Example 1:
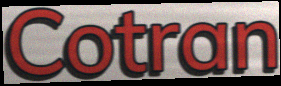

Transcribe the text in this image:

Cotran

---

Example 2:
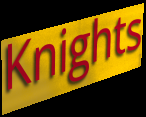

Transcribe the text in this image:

Knights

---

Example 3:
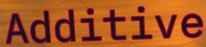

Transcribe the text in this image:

Additive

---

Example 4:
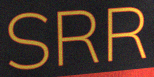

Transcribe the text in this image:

SRR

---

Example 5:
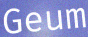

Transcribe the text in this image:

Geum